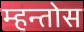
म्हन्तोस